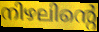
നിഴലിന്റെ